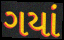
ગયાં